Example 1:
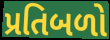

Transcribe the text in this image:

પ્રતિબળો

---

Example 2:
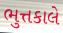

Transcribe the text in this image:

ભુત્તકાલે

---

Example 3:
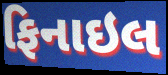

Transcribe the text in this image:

ફિનાઇલ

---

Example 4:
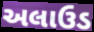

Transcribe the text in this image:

અલાઉડ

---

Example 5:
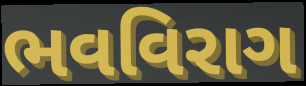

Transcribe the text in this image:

ભવવિરાગ